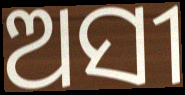
ଅସୀ